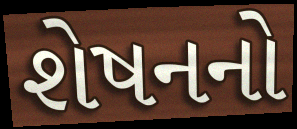
શેષનનો